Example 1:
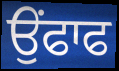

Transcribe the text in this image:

ਉੰਫਾਫ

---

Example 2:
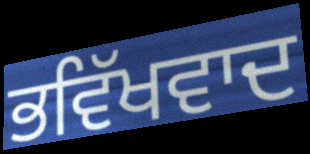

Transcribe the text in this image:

ਭਵਿੱਖਵਾਦ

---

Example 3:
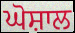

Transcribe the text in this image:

ਘੋਸ਼ਾਲ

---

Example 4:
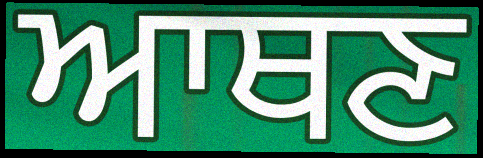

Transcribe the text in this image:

ਆਥਣ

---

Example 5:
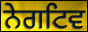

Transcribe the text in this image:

ਨੇਗਟਿਵ